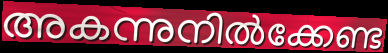
അകന്നുനിൽക്കേണ്ട